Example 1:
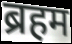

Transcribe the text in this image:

ब्रहम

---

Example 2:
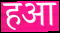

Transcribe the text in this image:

हआ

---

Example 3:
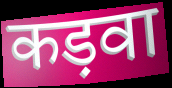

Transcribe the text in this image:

कड़वा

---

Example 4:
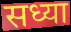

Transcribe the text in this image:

सध्या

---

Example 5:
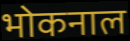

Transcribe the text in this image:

भोकनाल